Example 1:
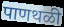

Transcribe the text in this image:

पाणथळी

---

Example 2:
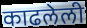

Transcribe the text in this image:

काढलेली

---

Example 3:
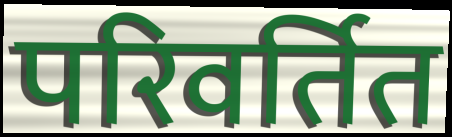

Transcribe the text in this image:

परिवर्तित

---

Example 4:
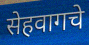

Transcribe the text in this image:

सेहवागचे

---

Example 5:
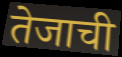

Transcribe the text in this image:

तेजाची